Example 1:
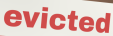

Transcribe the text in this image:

evicted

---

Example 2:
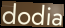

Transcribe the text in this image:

dodia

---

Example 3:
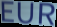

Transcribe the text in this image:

EUR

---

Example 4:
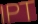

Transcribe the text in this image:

IPT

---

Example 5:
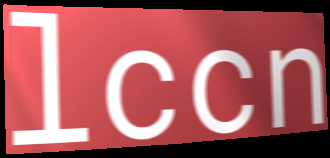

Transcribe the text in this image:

lccn